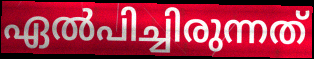
ഏൽപിച്ചിരുന്നത്